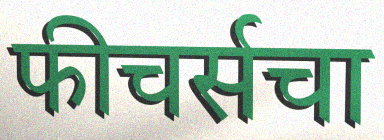
फीचर्सचा